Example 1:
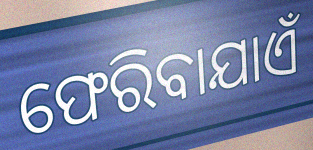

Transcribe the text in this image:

ଫେରିବାଯାଏଁ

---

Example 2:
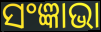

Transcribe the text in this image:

ସଂଜ୍ଞାଭା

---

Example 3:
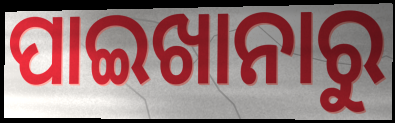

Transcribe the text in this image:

ପାଇଖାନାରୁ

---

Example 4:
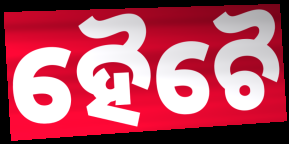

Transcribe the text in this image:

ହୈଚୈ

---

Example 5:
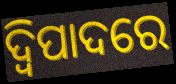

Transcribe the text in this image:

ଦ୍ୱିପାଦରେ